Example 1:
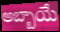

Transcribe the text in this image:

అబ్బాయే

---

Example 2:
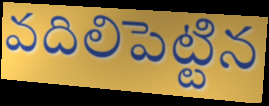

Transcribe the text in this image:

వదిలిపెట్టిన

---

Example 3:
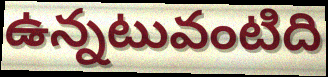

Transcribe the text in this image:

ఉన్నటువంటిది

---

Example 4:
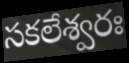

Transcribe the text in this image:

సకలేశ్వరః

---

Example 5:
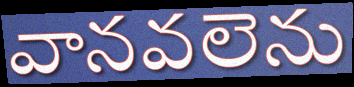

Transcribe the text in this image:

వానవలెను